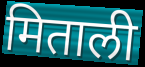
मिताली